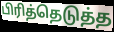
பிரித்தெடுத்த